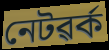
নেটৱৰ্ক